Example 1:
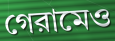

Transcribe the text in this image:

গেরামেও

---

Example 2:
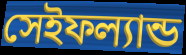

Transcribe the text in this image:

সেইফল্যান্ড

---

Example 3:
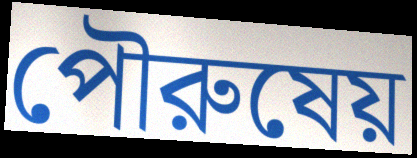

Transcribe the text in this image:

পৌরুষেয়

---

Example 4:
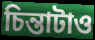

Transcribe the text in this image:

চিন্তাটাও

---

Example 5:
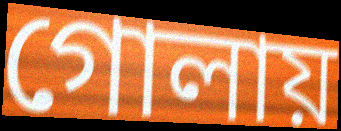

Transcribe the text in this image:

গোলায়